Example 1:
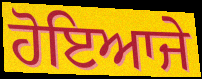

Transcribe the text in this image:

ਹੋਇਆਜੇ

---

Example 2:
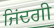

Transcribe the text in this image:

ਜਿਂਦਗੀ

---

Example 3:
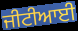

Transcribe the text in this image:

ਜੀਟੀਆਈ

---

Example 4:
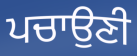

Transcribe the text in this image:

ਪਚਾਉਣੀ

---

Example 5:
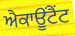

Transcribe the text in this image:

ਐਕਾਊਂਟੈਂਟ